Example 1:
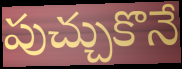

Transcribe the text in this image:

పుచ్చుకొనే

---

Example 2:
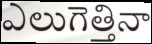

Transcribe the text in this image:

ఎలుగెత్తినా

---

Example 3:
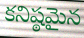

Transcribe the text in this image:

కనిష్ఠమైన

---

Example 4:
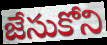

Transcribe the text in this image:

జేసుకోని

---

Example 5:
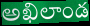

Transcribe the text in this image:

అఖిలాండ